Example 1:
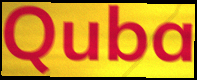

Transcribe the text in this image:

Quba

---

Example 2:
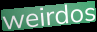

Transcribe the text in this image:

weirdos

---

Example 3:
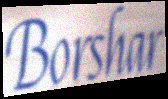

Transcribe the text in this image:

Borshar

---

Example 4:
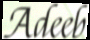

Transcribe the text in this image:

Adeeb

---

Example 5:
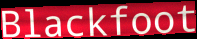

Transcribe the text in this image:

Blackfoot